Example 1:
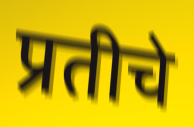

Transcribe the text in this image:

प्रतीचे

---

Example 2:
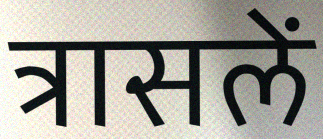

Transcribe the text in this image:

त्रासलें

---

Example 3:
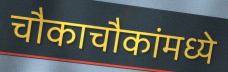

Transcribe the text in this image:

चौकाचौकांमध्ये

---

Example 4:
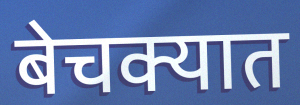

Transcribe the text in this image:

बेचक्यात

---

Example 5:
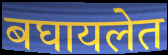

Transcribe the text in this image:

बघायलेत